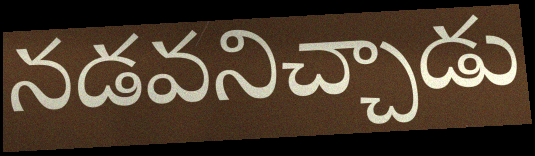
నడవనిచ్చాడు